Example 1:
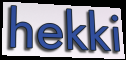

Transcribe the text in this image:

hekki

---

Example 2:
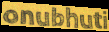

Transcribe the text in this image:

onubhuti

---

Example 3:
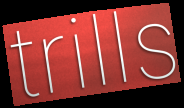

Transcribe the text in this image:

trills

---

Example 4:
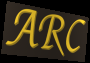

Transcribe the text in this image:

ARC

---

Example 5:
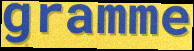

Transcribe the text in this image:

gramme